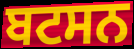
ਬਟਸਨ